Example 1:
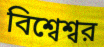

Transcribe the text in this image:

বিশ্বেশ্বর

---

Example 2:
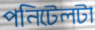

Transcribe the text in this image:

পনিটেলটা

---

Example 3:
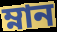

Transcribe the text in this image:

ম্নান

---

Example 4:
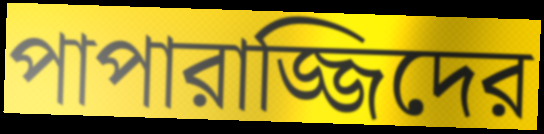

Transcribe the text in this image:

পাপারাজ্জিদের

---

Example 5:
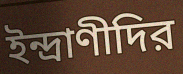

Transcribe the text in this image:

ইন্দ্রাণীদির